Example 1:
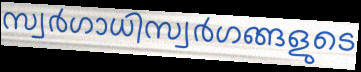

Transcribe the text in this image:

സ്വർഗാധിസ്വർഗങ്ങളുടെ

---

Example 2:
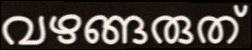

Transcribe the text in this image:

വഴങ്ങരുത്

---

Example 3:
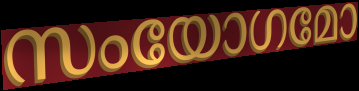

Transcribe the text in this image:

സംയോഗമോ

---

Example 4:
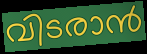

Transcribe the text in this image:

വിടരാൻ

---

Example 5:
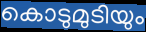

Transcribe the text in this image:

കൊടുമുടിയും